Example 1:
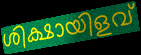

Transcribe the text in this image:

ശിക്ഷായിളവ്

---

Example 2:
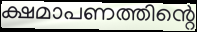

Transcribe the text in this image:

ക്ഷമാപണത്തിന്റെ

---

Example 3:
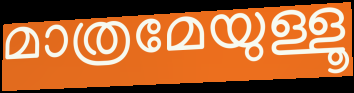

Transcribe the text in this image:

മാത്രമേയുള്ളൂ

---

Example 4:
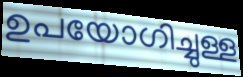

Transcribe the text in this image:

ഉപയോഗിച്ചുള്ള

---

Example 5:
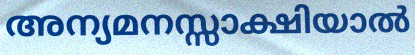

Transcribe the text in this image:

അന്യമനസ്സാക്ഷിയാൽ